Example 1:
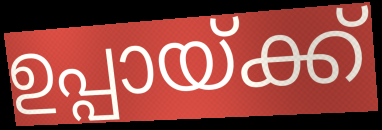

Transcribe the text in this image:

ഉപ്പായ്ക്ക്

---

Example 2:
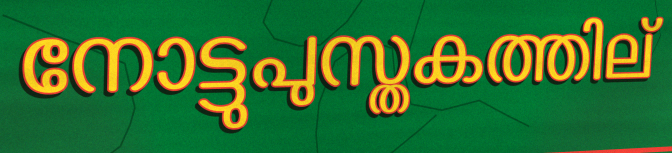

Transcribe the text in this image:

നോട്ടുപുസ്തകത്തില്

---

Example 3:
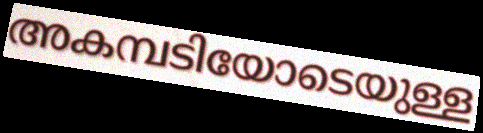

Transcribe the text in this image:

അകമ്പടിയോടെയുള്ള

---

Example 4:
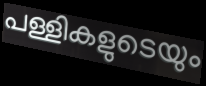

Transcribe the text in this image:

പള്ളികളുടെയും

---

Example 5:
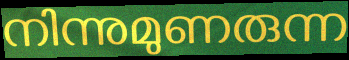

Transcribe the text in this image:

നിന്നുമുണരുന്ന